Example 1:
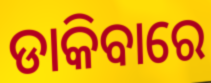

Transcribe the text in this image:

ଡାକିବାରେ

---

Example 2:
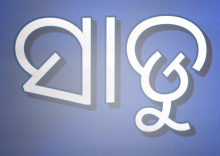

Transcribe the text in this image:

ସାଡୁ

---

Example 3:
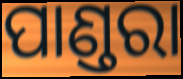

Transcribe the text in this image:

ପାଣ୍ଡରା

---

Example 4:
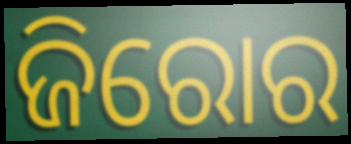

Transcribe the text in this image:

ଜିରୋର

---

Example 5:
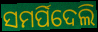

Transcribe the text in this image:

ସମର୍ପିଦେଲି